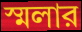
স্মলার